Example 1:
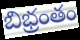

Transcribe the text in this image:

బిభ్రంతం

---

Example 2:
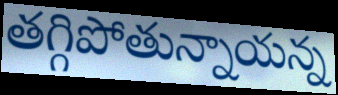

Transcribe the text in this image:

తగ్గిపోతున్నాయన్న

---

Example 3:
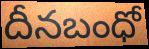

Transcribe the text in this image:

దీనబంధో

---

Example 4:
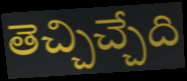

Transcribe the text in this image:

తెచ్చిచ్చేది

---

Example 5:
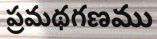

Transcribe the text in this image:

ప్రమథగణము